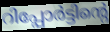
റിപ്പോർട്ടിന്റെ